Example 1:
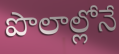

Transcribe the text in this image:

పొలాల్లోనే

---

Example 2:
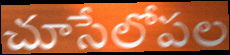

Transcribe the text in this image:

చూసేలోపల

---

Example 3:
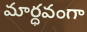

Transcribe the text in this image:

మార్ధవంగా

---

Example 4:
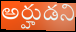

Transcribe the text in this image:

అర్హుడని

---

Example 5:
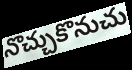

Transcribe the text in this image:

నొచ్చుకొనుచు